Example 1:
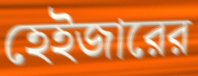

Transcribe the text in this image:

হেইজারের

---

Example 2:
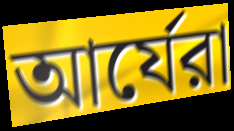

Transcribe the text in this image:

আর্যেরা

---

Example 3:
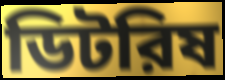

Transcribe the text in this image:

ডিটরিষ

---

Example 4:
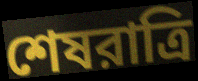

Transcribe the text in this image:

শেষরাত্রি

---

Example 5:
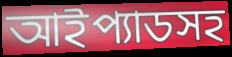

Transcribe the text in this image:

আইপ্যাডসহ